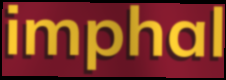
imphal